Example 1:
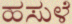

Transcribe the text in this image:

ಹಸುಳೆ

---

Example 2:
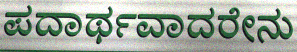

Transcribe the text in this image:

ಪದಾರ್ಥವಾದರೇನು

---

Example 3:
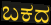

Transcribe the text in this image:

ಬಕದ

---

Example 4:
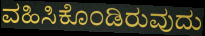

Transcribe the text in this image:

ವಹಿಸಿಕೊಂಡಿರುವುದು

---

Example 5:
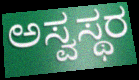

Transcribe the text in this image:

ಅಸ್ವಸ್ಥರ